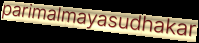
parimalmayasudhakar